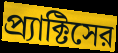
প্র্যাক্টিসের